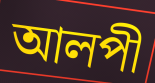
আলপী